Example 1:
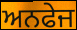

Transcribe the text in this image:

ਅਨਫੇਜ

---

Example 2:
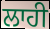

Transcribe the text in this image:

ਲਾਹੀ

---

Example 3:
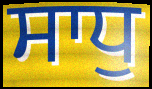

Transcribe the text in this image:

ਸਾਧੁ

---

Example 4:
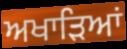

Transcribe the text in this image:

ਅਖਾੜਿਆਂ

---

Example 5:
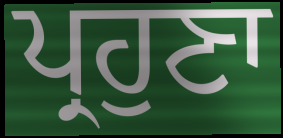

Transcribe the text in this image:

ਪ੍ਰਹੁਣਾ